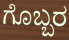
ಗೊಬ್ಬರ